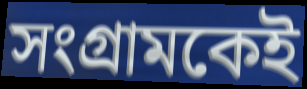
সংগ্রামকেই